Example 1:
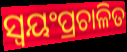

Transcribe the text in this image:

ସ୍ୱୟଂପ୍ରଚାଳିତ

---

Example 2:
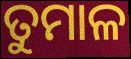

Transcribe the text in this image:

ତୁମାଳ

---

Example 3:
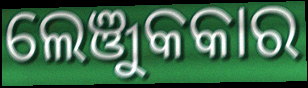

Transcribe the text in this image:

ଲେଞ୍ଜୁକକାର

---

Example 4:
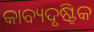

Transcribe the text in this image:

କାବ୍ୟଦୃଷ୍ଟିକ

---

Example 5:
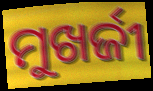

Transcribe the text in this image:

ମୁଖର୍ଜୀ